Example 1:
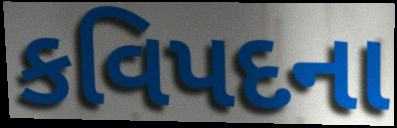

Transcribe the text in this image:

કવિપદના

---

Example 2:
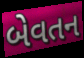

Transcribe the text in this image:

બેવતન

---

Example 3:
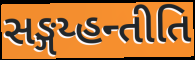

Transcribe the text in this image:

સઙ્ગય્હન્તીતિ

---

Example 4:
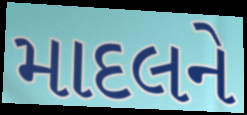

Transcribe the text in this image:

માદલને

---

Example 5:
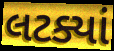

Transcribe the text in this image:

લટક્યાં